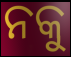
ନକୁ